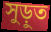
সুড়ুত